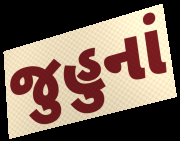
જુહુનાં